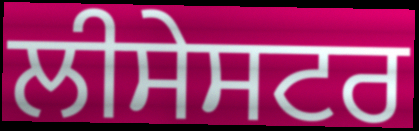
ਲੀਸੇਸਟਰ